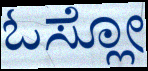
ಓಸ್ಲೋ